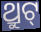
ଥ୍ରୁଟ୍